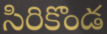
సిరికొండ